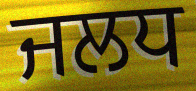
ਜਲਧ